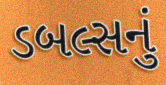
ડબલ્સનું